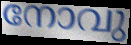
നോവു